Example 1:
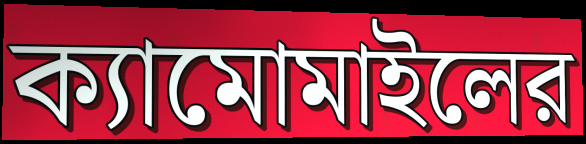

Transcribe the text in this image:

ক্যামোমাইলের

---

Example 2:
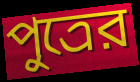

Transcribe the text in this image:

পুত্রের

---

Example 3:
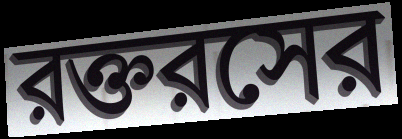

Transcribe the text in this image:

রক্তরসের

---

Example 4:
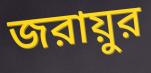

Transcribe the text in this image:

জরায়ুর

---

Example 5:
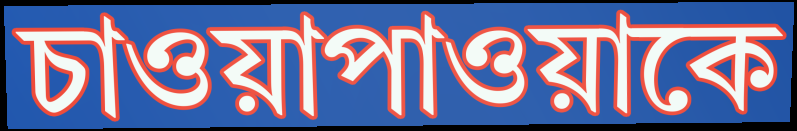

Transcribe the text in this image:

চাওয়াপাওয়াকে